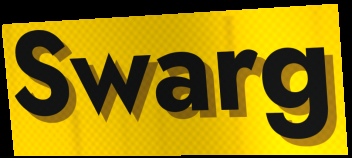
Swarg